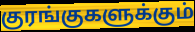
குரங்குகளுக்கும்